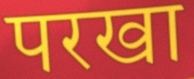
परखा